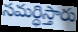
సమర్ధిస్తారు